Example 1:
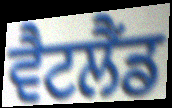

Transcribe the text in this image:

ਵੈਟਲੈਂਡ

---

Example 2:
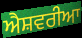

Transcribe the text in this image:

ਐਸ਼ਵਰੀਆ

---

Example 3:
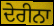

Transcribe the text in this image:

ਦੇਰੀਨਾ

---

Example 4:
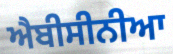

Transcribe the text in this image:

ਐਬੀਸੀਨੀਆ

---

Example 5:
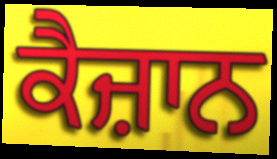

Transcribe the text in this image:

ਕੈਜ਼ਾਨ